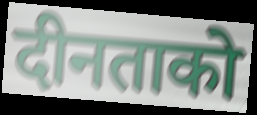
दीनताको